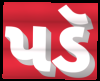
પડૅ